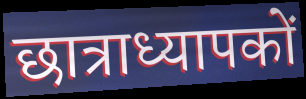
छात्राध्यापकों